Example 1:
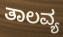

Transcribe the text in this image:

ತಾಲವ್ಯ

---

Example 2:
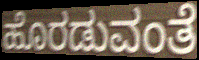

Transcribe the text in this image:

ಹೊರಡುವಂತೆ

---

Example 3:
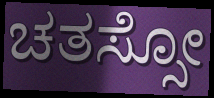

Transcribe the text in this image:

ಚತಸ್ಸೋ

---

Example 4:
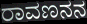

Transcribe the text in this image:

ರಾವಣನನ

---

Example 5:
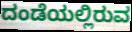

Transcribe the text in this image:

ದಂಡೆಯಲ್ಲಿರುವ